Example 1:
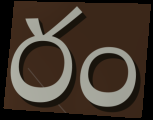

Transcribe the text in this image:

రం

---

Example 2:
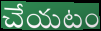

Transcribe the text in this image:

చేయటం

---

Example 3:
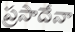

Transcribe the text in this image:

ప్రసాదేనా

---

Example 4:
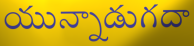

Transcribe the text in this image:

యున్నాడుగదా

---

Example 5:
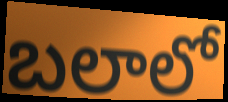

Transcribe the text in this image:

బలాలో